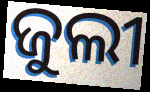
ଜୁଲୀ